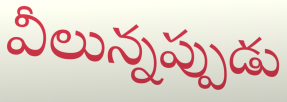
వీలున్నప్పుడు